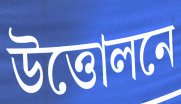
উত্তোলনে